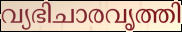
വ്യഭിചാരവൃത്തി